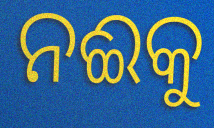
ନଈକୁ